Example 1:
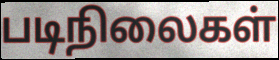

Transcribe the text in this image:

படிநிலைகள்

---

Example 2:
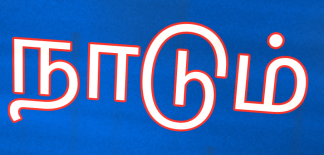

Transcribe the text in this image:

நாடும்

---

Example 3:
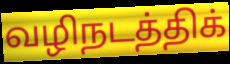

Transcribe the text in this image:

வழிநடத்திக்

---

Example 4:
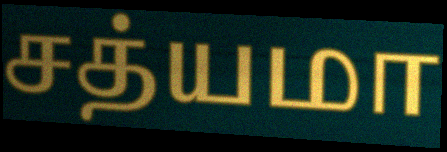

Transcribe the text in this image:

சத்யமா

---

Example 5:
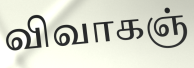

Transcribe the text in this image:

விவாகஞ்